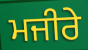
ਮਜੀਰੇ